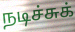
நடிச்சுக்